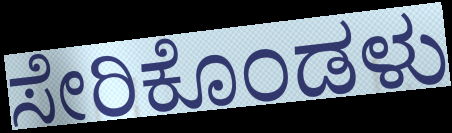
ಸೇರಿಕೊಂಡಳು